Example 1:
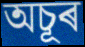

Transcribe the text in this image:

অচূৰ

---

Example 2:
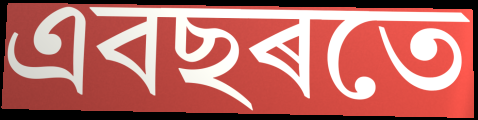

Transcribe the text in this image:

এবছৰতে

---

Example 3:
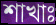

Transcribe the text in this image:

শাখাঃ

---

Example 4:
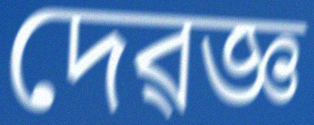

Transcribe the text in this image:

দেৱজ্ঞ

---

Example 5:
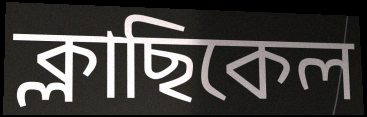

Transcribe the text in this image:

ক্লাছিকেল